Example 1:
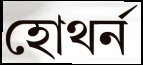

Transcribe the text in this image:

হোথর্ন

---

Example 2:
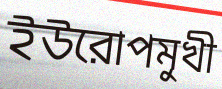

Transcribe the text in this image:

ইউরোপমুখী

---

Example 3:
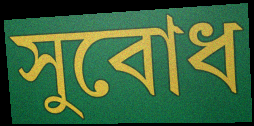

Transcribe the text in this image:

সুবোধ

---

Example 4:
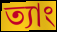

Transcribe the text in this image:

ত্যাং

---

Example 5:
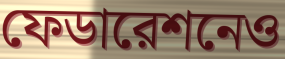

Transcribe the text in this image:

ফেডারেশনেও